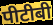
पीटीबी